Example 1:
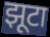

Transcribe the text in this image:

झूटा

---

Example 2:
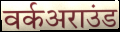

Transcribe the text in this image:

वर्कअराउंड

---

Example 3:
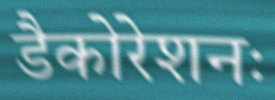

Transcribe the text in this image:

डैकोरेशनः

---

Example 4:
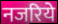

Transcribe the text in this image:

नजरिये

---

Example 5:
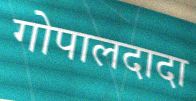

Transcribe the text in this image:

गोपालदादा